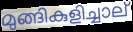
മുങ്ങികുളിച്ചാല്